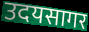
उदयसागर